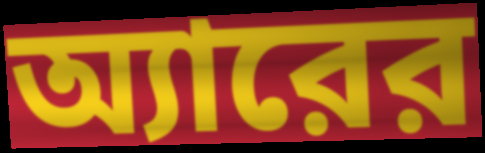
অ্যারের